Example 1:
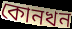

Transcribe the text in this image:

কোনখন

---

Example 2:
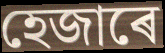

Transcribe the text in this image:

হেজাৰে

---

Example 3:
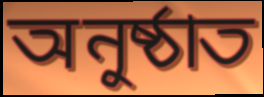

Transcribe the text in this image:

অনুষ্ঠাত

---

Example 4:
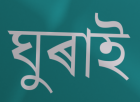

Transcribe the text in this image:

ঘুৰাই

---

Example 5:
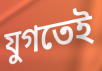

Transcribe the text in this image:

যুগতেই